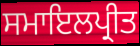
ਸਮਾਇਲਪ੍ਰੀਤ